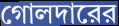
গোলদারের